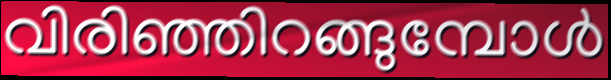
വിരിഞ്ഞിറങ്ങുമ്പോൾ